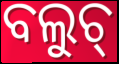
ବଲୁଚ୍